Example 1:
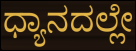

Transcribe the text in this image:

ಧ್ಯಾನದಲ್ಲೇ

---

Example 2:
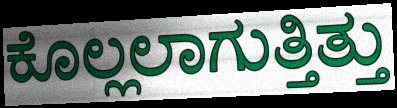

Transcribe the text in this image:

ಕೊಲ್ಲಲಾಗುತ್ತಿತ್ತು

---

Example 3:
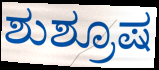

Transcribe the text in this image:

ಶುಶ್ರೂಷ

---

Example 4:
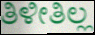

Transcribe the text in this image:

ತಿಳೀತಿಲ್ಲ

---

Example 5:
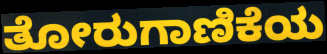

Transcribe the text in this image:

ತೋರುಗಾಣಿಕೆಯ